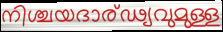
നിശ്ചയദാര്ഢ്യവുമുള്ള